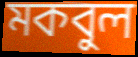
মকবুল